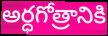
అర్ధగోత్రానికి